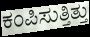
ಕಂಪಿಸುತ್ತಿತ್ತು